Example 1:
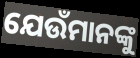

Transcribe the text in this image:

ଯେଉଁମାନଙ୍କୁ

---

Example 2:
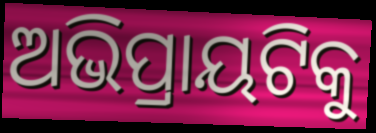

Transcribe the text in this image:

ଅଭିପ୍ରାୟଟିକୁ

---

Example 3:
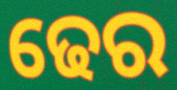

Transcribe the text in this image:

ଢେର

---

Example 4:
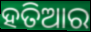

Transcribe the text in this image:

ହତିଆର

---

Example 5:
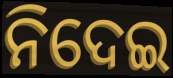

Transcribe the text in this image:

ନିଦେଇ